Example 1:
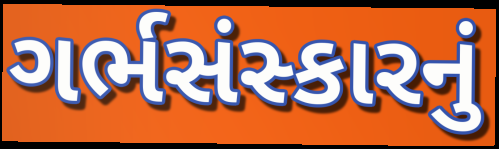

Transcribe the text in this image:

ગર્ભસંસ્કારનું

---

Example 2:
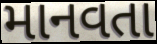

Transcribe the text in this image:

માનવતા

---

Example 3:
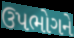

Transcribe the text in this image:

ઉપભોગને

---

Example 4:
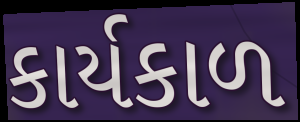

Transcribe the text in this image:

કાર્યકાળ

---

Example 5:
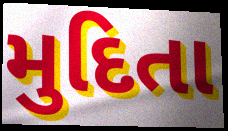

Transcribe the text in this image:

મુદિતા